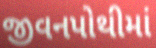
જીવનપોથીમાં